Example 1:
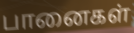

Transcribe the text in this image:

பானைகள்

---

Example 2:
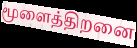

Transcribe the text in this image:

மூளைத்திறனை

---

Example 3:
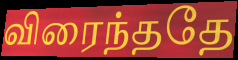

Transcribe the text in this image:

விரைந்ததே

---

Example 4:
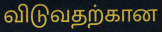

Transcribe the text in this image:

விடுவதற்கான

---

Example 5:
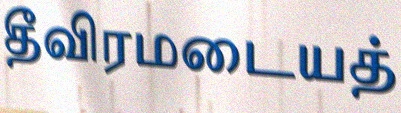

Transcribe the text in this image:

தீவிரமடையத்